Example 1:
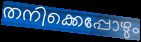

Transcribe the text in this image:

തനിക്കെപ്പോഴും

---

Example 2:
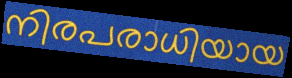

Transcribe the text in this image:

നിരപരാധിയായ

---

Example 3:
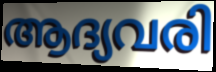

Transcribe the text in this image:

ആദ്യവരി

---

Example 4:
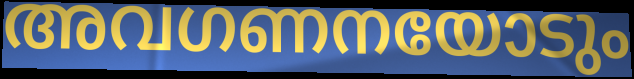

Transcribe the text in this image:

അവഗണനയോടും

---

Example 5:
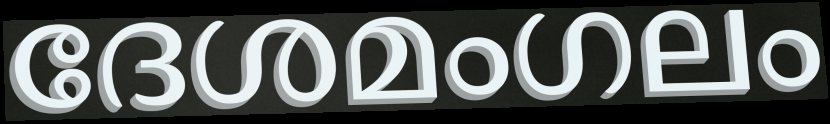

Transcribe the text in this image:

ദേശമംഗലം